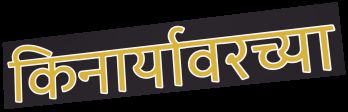
किनार्यावरच्या